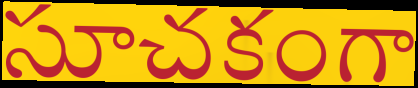
సూచకంగా